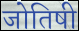
जोतिषी